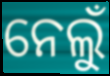
ନେଲୁଁ